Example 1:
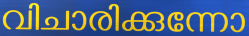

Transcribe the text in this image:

വിചാരിക്കുന്നോ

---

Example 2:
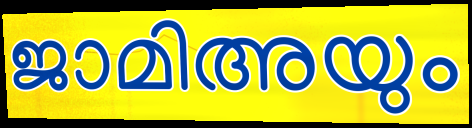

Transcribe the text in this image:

ജാമിഅയും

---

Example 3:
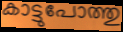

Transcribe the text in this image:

കാട്ടുപോത്തു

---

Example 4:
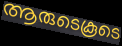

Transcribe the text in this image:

ആരുടെകൂടെ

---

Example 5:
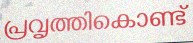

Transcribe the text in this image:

പ്രവൃത്തികൊണ്ട്